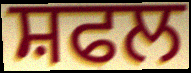
ਸ਼ਫਲ